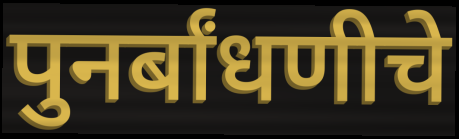
पुनर्बांधणीचे